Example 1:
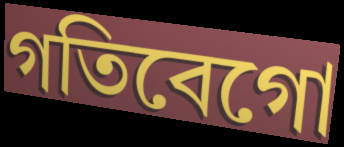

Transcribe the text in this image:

গতিবেগো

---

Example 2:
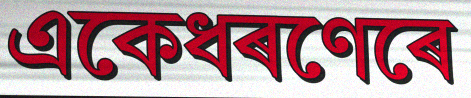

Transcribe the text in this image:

একেধৰণেৰে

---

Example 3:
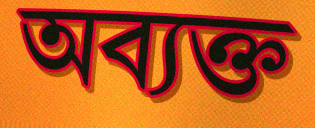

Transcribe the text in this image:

অব্যক্ত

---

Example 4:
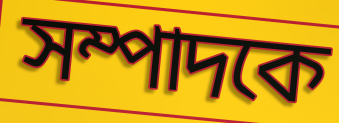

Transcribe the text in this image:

সম্পাদকে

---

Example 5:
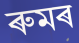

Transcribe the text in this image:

ৰুমৰ